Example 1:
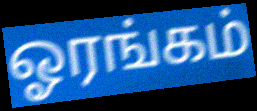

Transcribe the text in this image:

ஓரங்கம்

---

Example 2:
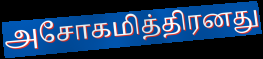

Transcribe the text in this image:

அசோகமித்திரனது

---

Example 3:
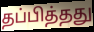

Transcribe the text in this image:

தப்பித்தது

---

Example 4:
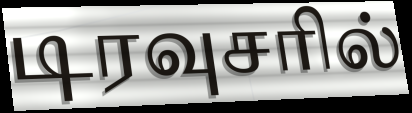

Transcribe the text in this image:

டிரவுசரில்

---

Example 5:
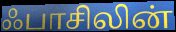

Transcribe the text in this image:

ஃபாசிலின்